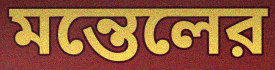
মন্তেলের